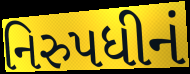
નિરુપધીનં